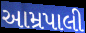
આમ્રપાલી